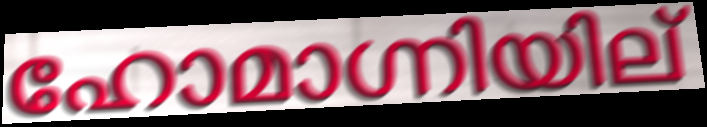
ഹോമാഗ്നിയില്